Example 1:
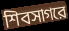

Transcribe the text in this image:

শিবসাগরে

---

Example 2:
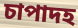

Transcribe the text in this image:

চাপাদহ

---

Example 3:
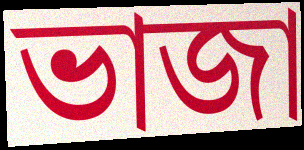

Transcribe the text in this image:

ভাজা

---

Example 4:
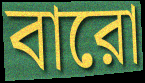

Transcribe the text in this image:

বারো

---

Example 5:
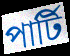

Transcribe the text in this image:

পার্টি